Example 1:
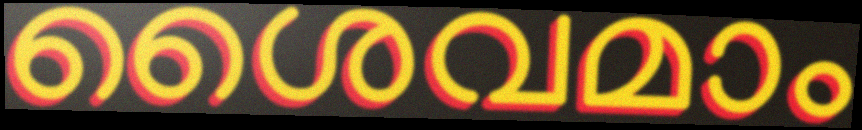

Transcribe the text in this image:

ശൈവമാം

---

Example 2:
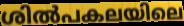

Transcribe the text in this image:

ശിൽപകലയിലെ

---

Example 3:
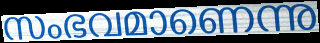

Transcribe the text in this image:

സംഭവമാണെന്നു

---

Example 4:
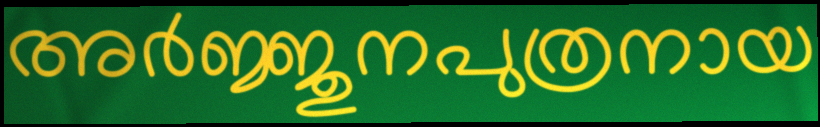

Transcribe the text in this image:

അർജ്ജുനപുത്രനായ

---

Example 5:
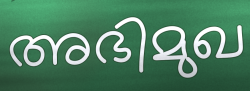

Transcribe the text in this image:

അഭിമുഖ